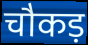
चौकड़